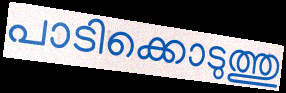
പാടിക്കൊടുത്തു